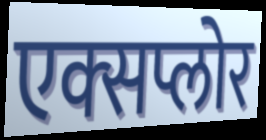
एक्‍सप्लोर